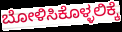
ಬೋಳಿಸಿಕೊಳ್ಳಲಿಕ್ಕೆ